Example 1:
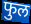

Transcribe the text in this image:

फुल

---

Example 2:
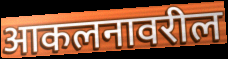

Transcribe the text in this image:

आकलनावरील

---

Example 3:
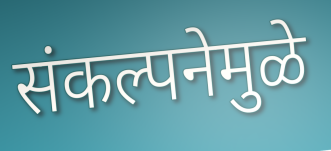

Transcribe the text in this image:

संकल्पनेमुळे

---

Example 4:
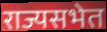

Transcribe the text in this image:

राज्यसभेत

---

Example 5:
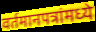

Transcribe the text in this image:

वर्तमानपत्रांमध्ये